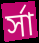
র্সা